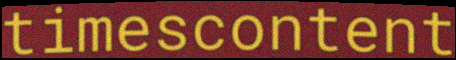
timescontent